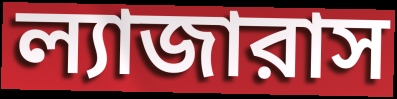
ল্যাজারাস